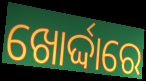
ଖୋର୍ଦ୍ଦାରେ